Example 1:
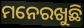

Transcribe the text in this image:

ମନେରଖୁଛି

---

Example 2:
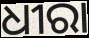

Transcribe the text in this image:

ଧୀରା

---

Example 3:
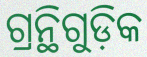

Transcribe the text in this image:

ଗ୍ରନ୍ଥିଗୁଡ଼ିକ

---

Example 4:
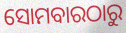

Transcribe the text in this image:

ସୋମବାରଠାରୁ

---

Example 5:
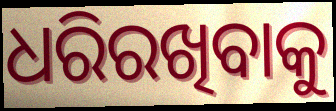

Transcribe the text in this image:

ଧରିରଖିବାକୁ